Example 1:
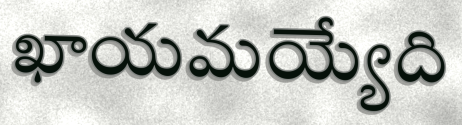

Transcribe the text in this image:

ఖాయమయ్యేది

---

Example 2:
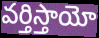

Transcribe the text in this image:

వర్తిస్తాయో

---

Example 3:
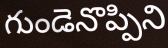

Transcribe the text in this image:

గుండెనొప్పిని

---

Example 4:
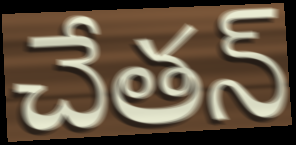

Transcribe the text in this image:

చేతన్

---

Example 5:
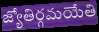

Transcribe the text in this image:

జ్యోతిర్గమయేతి